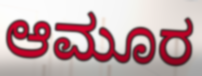
ಆಮೂರ